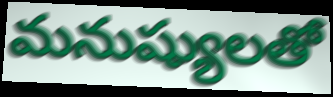
మనుష్యులతో